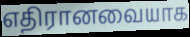
எதிரானவையாக